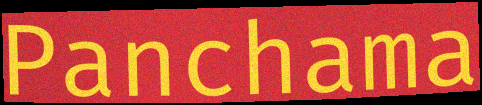
Panchama